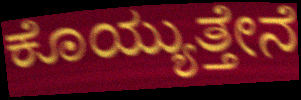
ಕೊಯ್ಯುತ್ತೇನೆ